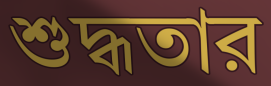
শুদ্ধতার